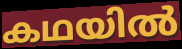
കഥയിൽ